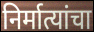
निर्मात्यांचा